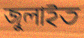
জুলাইত